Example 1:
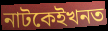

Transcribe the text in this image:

নাটকেইখনত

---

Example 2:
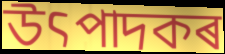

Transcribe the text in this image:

উৎপাদকৰ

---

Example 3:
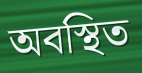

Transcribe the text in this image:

অবস্থিত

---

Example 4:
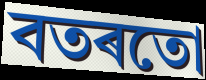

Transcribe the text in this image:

বতৰতো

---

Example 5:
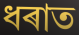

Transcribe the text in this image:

ধৰাত